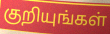
குறியுங்கள்